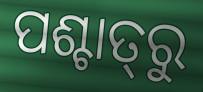
ପଶ୍ଚାତ୍‌ରୁ